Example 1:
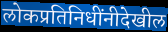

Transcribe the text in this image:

लोकप्रतिनिधींनीदेखील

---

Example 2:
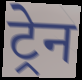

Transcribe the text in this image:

ट्रेन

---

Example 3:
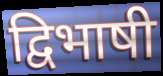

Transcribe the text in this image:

द्विभाषी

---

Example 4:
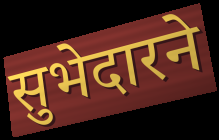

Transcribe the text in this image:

सुभेदारने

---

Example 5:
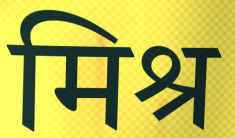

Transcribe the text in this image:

मिश्र